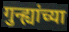
गुन्ह्यांच्या